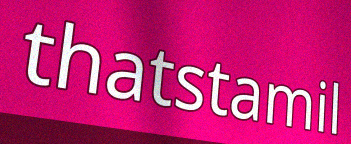
thatstamil